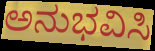
ಅನುಭವಿಸಿ